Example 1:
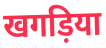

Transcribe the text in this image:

खगड़िया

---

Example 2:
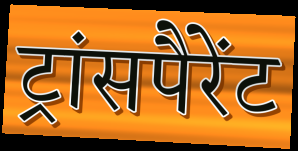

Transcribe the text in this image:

ट्रांसपैरेंट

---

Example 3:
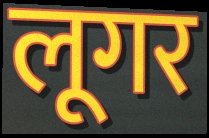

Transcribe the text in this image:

लूगर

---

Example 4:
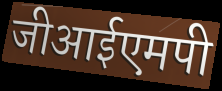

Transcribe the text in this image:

जीआईएमपी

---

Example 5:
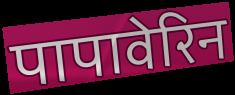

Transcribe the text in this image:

पापावेरिन